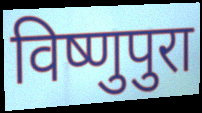
विष्णुपुरा